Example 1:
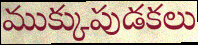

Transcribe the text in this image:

ముక్కుపుడకలు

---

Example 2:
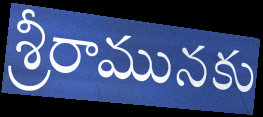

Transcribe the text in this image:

శ్రీరామునకు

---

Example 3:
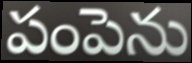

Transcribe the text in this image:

పంపెను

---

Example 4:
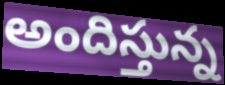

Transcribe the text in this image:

అందిస్తున్న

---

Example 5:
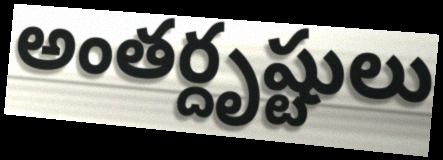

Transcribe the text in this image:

అంతర్దృష్టులు